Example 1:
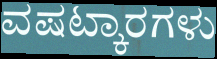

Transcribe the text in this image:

ವಷಟ್ಕಾರಗಳು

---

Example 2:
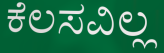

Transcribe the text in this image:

ಕೆಲಸವಿಲ್ಲ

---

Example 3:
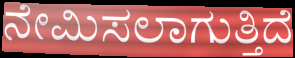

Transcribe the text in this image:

ನೇಮಿಸಲಾಗುತ್ತಿದೆ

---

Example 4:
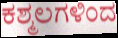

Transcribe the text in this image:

ಕಶ್ಮಲಗಳಿಂದ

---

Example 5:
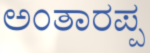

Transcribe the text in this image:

ಅಂತಾರಪ್ಪ